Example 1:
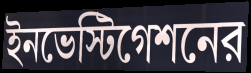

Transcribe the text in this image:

ইনভেস্টিগেশনের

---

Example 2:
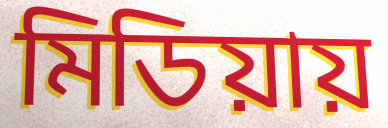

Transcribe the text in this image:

মিডিয়ায়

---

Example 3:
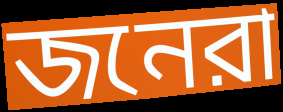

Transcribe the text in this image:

জনেরা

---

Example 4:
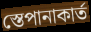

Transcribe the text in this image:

স্তেপানাকার্ত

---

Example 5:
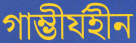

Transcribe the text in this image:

গাম্ভীর্যহীন